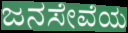
ಜನಸೇವೆಯ